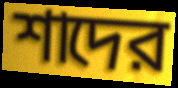
শাদের